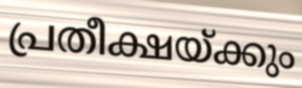
പ്രതീക്ഷയ്ക്കും